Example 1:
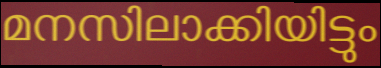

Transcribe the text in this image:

മനസിലാക്കിയിട്ടും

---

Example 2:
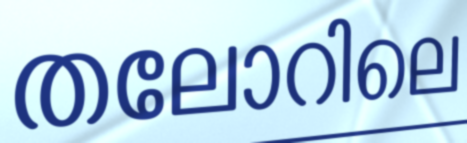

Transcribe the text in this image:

തലോറിലെ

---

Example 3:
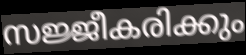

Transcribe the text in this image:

സജ്ജീകരിക്കും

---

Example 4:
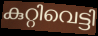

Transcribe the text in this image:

കുറ്റിവെട്ടി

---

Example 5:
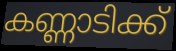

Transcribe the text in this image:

കണ്ണാടിക്ക്